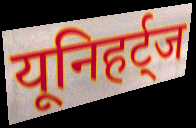
यूनिहर्ट्ज